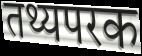
तथ्यपरक